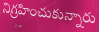
నిగ్రహించుకున్నారు